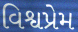
વિશ્વપ્રેમ